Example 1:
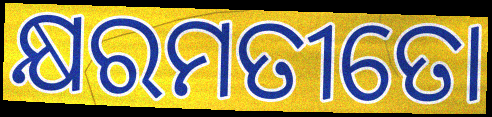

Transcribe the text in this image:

କ୍ଷରମତୀତୋ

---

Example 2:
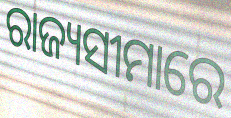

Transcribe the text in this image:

ରାଜ୍ୟସୀମାରେ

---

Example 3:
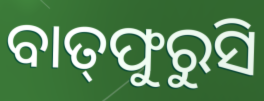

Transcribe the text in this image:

ବାତ୍‌ଫୁରୁସି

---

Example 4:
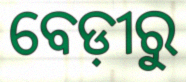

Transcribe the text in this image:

ବେଡ଼ୀରୁ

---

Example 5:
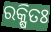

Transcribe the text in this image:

ରକ୍ଷିତଃ